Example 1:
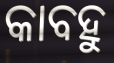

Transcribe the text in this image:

କାବହୁ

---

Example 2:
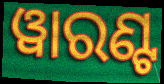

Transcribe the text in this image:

ୱାରଣ୍ଟ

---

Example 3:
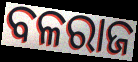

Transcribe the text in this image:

ବଳରାଜ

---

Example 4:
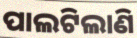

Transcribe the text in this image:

ପାଲଟିଲାଣି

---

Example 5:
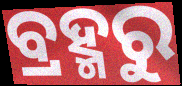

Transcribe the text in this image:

ବ୍ରହ୍ମରୁ